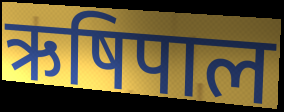
ऋषिपाल